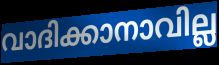
വാദിക്കാനാവില്ല